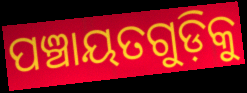
ପଞ୍ଚାୟତଗୁଡ଼ିକୁ